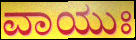
ವಾಯುಃ